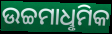
ଉଚ୍ଚମାଧୢମିକ